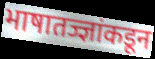
भाषातज्ज्ञांकडून